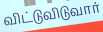
விட்டுவிடுவார்